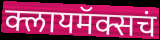
क्लायमॅक्सचं